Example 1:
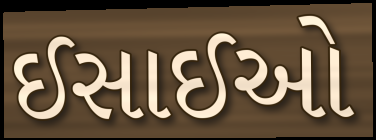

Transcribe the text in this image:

ઈસાઈઓ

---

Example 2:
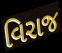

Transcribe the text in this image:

વિરાજ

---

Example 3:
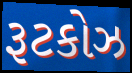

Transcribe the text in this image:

રૂટકોઝ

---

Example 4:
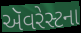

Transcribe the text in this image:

ઍૅવરેસ્ટના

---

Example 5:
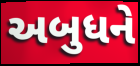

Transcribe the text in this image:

અબુધને